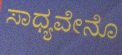
ಸಾಧ್ಯವೇನೊ